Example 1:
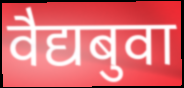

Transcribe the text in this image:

वैद्यबुवा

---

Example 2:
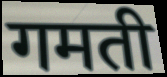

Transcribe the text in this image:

गमती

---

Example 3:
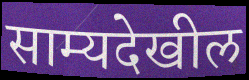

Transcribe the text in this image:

साम्यदेखील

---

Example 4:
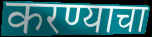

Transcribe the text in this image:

करण्याचा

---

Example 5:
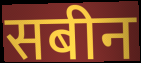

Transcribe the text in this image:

सबीन